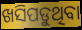
ଖସିପଡୁଥିବା